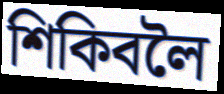
শিকিবলৈ